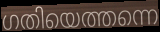
ഗതിയെത്തന്നെ